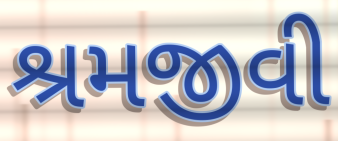
શ્રમજીવી